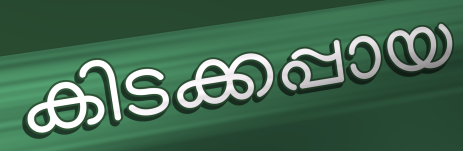
കിടക്കപ്പായ